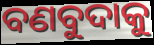
ବଣବୁଦାକୁ